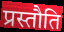
प्रस्तौति